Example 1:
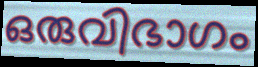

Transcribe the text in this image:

ഒരുവിഭാഗം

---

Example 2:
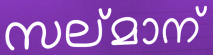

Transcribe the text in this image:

സല്മാന്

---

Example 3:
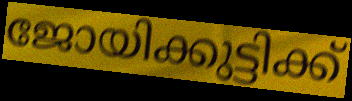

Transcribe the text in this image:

ജോയിക്കുട്ടിക്ക്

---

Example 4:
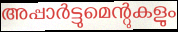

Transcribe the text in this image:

അപ്പാർട്ടുമെന്റുകളും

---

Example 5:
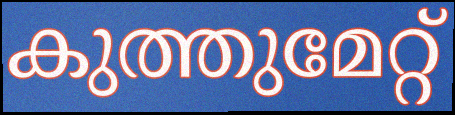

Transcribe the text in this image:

കുത്തുമേറ്റ്